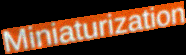
Miniaturization